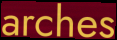
arches